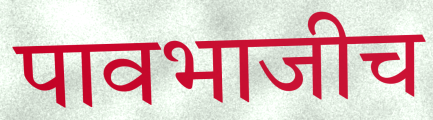
पावभाजीच